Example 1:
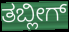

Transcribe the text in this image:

ತಬ್ಲೀಗ್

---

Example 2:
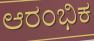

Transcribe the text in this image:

ಆರಂಭಿಕ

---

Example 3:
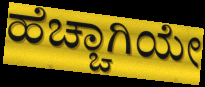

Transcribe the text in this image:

ಹೆಚ್ಚಾಗಿಯೇ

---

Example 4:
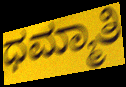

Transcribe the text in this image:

ಧಮ್ಮಾತಿ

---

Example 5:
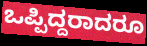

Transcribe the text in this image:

ಒಪ್ಪಿದ್ದರಾದರೂ